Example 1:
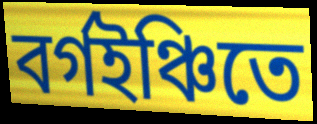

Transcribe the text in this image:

বর্গইঞ্চিতে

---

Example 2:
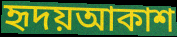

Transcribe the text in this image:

হৃদয়আকাশ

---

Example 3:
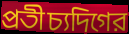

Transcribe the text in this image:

প্রতীচ্যদিগের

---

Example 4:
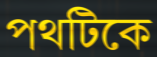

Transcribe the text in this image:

পথটিকে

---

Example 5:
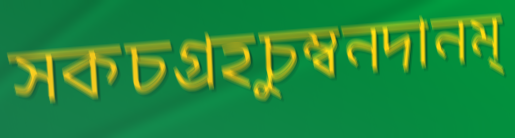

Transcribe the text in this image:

সকচগ্রহচুম্বনদানম্